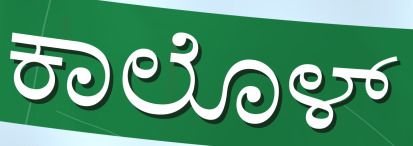
ಕಾಲೊಳ್